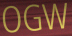
OGW